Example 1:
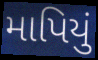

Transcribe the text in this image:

માપિયું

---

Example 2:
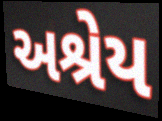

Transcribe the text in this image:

અશ્રેય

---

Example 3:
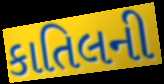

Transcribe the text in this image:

કાતિલની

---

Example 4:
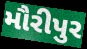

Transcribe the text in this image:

મૌરીપુર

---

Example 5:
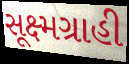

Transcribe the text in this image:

સૂક્ષ્મગ્રાહી